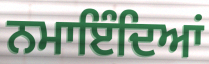
ਨਮਾਇੰਦਿਆਂ